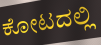
ಕೋಟದಲ್ಲಿ